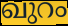
ഖുറം